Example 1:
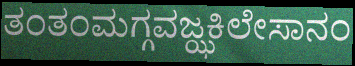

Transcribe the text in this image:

ತಂತಂಮಗ್ಗವಜ್ಝಕಿಲೇಸಾನಂ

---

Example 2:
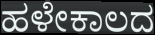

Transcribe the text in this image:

ಹಳೇಕಾಲದ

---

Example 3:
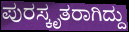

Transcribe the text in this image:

ಪುರಸ್ಕೃತರಾಗಿದ್ದು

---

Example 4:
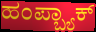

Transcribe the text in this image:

ಹಂಪ್ಬ್ಯಾಕ್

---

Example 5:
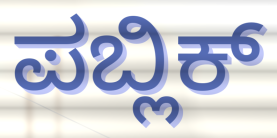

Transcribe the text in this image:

ಪಬ್ಲಿಕ್